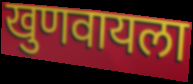
खुणवायला